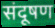
संदूषण